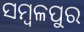
ସମ୍ବଳପୁର